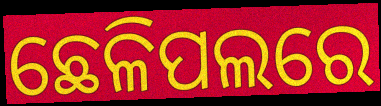
ଛେଳିପଲରେ